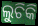
ଲୁଚିକି